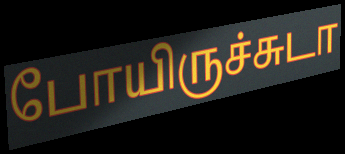
போயிருச்சுடா